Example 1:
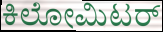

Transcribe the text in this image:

ಕಿಲೋಮಿಟರ್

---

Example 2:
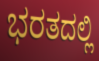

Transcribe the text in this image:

ಭರತದಲ್ಲಿ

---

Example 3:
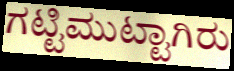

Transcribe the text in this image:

ಗಟ್ಟಿಮುಟ್ಟಾಗಿರು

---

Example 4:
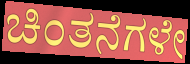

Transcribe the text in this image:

ಚಿಂತನೆಗಳೇ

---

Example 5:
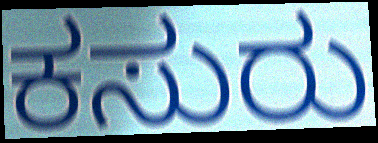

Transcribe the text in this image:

ಕಸುರು